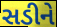
સડીને